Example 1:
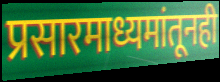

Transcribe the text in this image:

प्रसारमाध्यमांतूनही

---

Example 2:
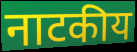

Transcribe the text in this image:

नाटकीय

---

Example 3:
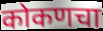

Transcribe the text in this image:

कोकणचा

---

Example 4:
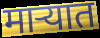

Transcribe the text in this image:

माऱ्यात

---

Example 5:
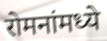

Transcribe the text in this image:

रोमनांमध्ये